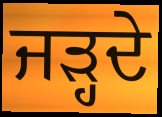
ਜੜ੍ਹਦੇ